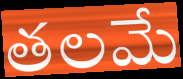
తలమే